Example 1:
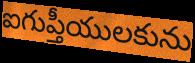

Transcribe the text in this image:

ఐగుప్తీయులకును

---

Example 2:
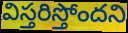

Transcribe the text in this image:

విస్తరిస్తోందని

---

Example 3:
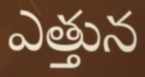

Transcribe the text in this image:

ఎత్తున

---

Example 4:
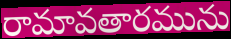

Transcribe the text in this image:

రామావతారమును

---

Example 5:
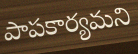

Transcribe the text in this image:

పాపకార్యమని